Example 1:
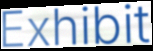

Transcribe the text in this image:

Exhibit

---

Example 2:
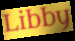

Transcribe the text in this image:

Libby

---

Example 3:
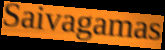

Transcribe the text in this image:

Saivagamas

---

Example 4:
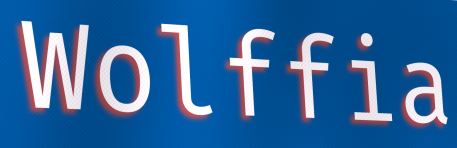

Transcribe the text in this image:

Wolffia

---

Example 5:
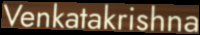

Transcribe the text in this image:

Venkatakrishna